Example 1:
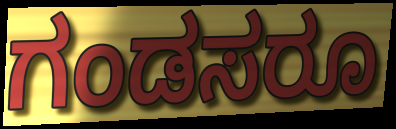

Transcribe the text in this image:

ಗಂಡಸರೂ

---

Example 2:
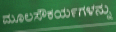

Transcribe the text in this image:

ಮೂಲಸೌಕರ್ಯಗಳನ್ನು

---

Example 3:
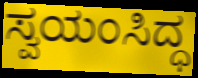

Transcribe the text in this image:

ಸ್ವಯಂಸಿದ್ಧ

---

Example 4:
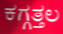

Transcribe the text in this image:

ಕಗ್ಗತ್ತಲ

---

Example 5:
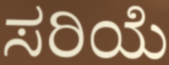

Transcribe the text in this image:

ಸರಿಯೆ